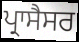
ਪ੍ਰਾਸੈਸਰ